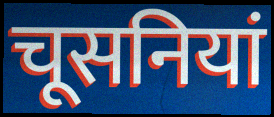
चूसनियां